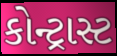
કોન્ટ્રાસ્ટ